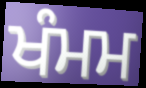
ਖੰਮਮ